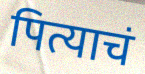
पित्याचं